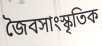
জৈবসাংস্কৃতিক